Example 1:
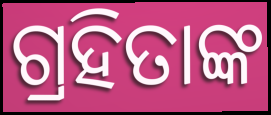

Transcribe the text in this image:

ଗ୍ରହିତାଙ୍କ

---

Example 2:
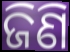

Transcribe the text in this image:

ଜିଣି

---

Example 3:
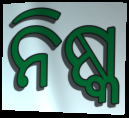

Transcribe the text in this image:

ନିଷ୍କ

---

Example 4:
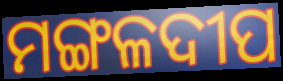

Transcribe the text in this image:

ମଙ୍ଗଳଦୀପ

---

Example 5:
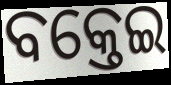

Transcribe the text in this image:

ବକ୍ତେଇ